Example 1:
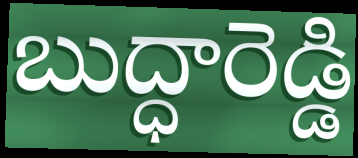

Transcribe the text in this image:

బుద్ధారెడ్డి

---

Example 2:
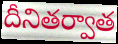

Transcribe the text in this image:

దీనితర్వాత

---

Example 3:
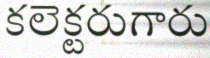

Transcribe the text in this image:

కలెక్టరుగారు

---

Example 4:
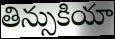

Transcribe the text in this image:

తిన్సుకియా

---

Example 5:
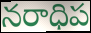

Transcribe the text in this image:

నరాధిప